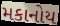
મકાનોય